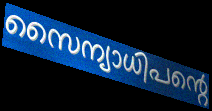
സൈന്യാധിപന്റെ